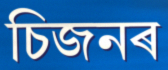
চিজনৰ